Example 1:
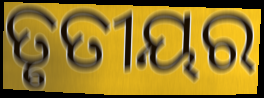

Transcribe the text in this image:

ତୃତୀୟର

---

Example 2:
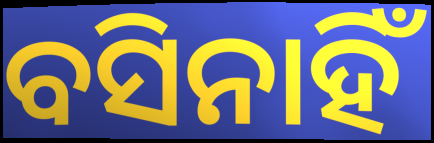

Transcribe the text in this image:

ବସିନାହିଁ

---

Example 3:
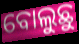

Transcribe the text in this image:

ବୋଲୁଛୁ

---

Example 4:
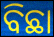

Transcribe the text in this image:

ବିଛା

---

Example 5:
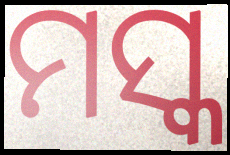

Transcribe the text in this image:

ମସ୍କ